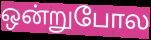
ஒன்றுபோல